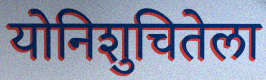
योनिशुचितेला